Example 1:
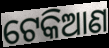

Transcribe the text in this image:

ଟେକିଆଣ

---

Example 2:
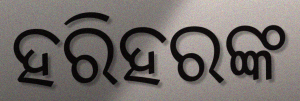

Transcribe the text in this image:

ହରିହରଙ୍କ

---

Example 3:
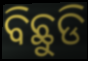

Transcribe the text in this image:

ବିଛୁଡି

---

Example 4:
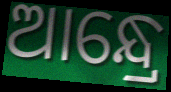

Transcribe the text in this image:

ଆନ୍ଧ୍ରେ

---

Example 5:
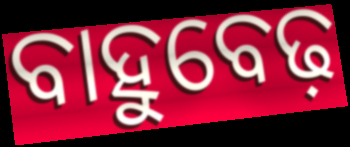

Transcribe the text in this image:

ବାହୁବେଢ଼